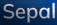
Sepal